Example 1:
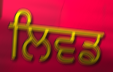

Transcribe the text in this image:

ਲਿਵਡ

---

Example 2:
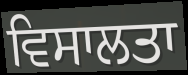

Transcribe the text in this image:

ਵਿਸਾਲਤਾ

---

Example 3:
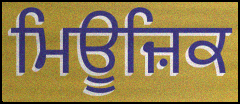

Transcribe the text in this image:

ਮਿਊਜ਼ਿਕ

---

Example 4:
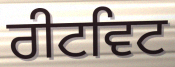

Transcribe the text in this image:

ਰੀਟਵਿਟ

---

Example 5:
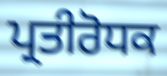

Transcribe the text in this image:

ਪ੍ਰਤੀਰੋਧਕ